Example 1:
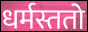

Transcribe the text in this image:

धर्मस्ततो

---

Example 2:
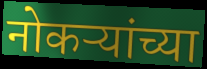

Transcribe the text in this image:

नोकऱ्यांच्या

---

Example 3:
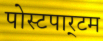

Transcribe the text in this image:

पोस्टपार्टम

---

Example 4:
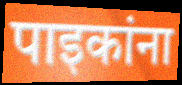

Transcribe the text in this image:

पाइकांना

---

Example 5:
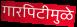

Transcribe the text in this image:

गारपिटीमुळे